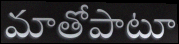
మాతోపాటూ